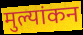
मुल्यांकन